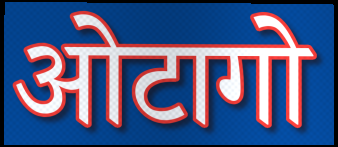
ओटागो